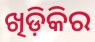
ଖିଡ଼ିକିର